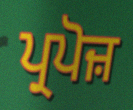
ਪ੍ਰਪੋਜ਼